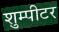
शुम्पीटर